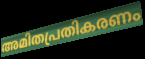
അമിതപ്രതികരണം